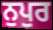
ਨੁਪੁਰ